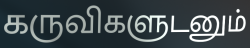
கருவிகளுடனும்